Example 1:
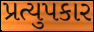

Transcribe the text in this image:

પ્રત્યુપકાર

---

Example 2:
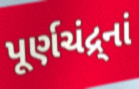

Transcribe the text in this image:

પૂર્ણચંદ્ર્નાં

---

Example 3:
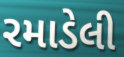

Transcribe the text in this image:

રમાડેલી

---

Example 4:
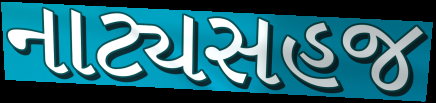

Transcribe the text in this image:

નાટ્યસહજ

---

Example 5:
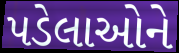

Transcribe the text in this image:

પડેલાઓને